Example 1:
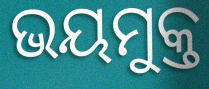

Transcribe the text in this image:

ଭୟମୁକ୍ତ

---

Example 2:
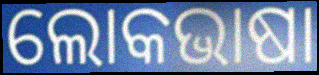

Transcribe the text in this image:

ଲୋକଭାଷା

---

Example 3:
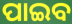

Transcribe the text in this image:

ପାଇବ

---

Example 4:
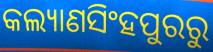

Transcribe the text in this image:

କଲ୍ୟାଣସିଂହପୁରରୁ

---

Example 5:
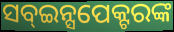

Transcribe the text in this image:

ସବ୍ଇନ୍ସପେକ୍ଟରଙ୍କ